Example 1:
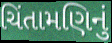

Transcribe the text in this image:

ચિંતામણિનું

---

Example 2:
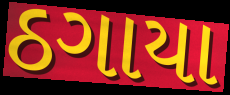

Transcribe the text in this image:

ઠગાયા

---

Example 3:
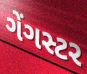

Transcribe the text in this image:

ગેંગસ્ટર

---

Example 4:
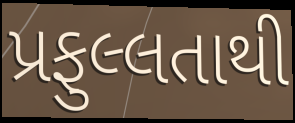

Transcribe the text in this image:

પ્રફુલ્લતાથી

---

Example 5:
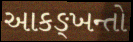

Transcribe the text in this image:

આકઙ્ખન્તો